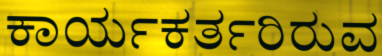
ಕಾರ್ಯಕರ್ತರಿರುವ